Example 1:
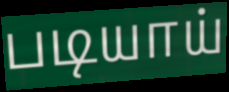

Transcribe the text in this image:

படியாய்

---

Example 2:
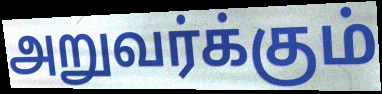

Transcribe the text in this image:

அறுவர்க்கும்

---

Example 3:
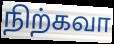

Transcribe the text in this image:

நிற்கவா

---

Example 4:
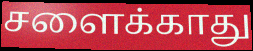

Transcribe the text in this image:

சளைக்காது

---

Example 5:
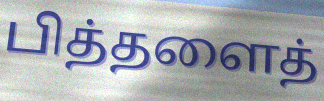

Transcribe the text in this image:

பித்தளைத்